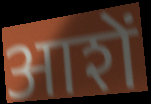
आशें